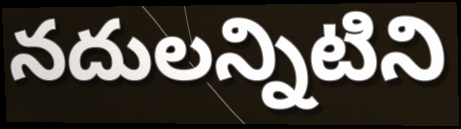
నదులన్నిటిని